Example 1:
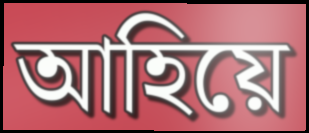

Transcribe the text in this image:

আহিয়ে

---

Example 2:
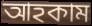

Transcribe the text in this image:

আহকাম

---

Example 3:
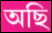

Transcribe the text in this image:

অছি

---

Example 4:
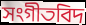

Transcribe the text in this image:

সংগীতবিদ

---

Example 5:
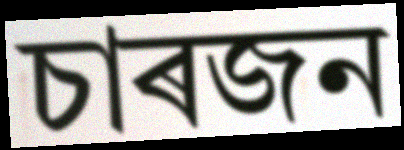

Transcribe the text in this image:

চাৰজন